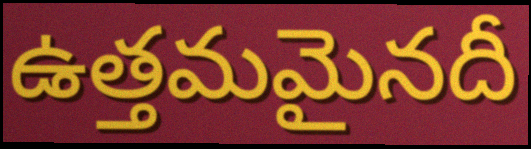
ఉత్తమమైనదీ